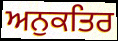
ਅਨੁਕਤਿਰ